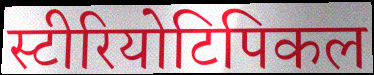
स्टीरियोटिपिकल